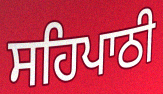
ਸਹਿਪਾਠੀ